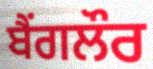
ਬੈਂਗਲੌਰ